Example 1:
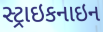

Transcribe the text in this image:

સ્ટ્રાઇકનાઇન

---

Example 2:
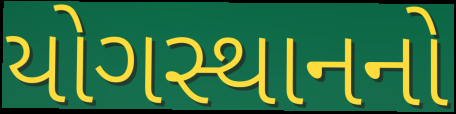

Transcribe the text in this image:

યોગસ્થાનનો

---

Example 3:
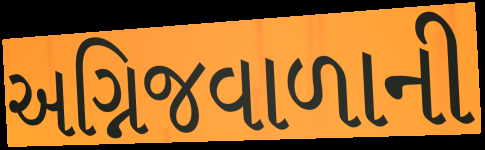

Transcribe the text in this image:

અગ્નિજવાળાની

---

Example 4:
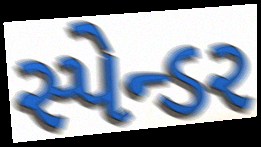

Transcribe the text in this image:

સ્પેન્ડર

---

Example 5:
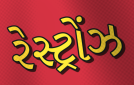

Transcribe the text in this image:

રેસ્ટ્રોંઝ